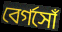
বের্গসোঁ